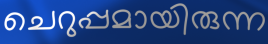
ചെറുപ്പമായിരുന്ന